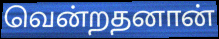
வென்றதனான்